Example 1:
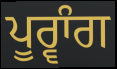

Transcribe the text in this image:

ਪੂਰ੍ਵਾੰਗ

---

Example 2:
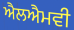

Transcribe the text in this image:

ਐਲਐਮਵੀ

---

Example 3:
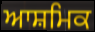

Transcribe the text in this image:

ਆਸ਼ਮਿਕ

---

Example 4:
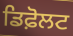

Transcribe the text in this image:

ਡਿਫ਼ੋਲਟ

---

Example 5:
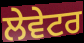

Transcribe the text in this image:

ਲੇਵੇਟਰ